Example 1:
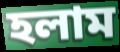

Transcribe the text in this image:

হলাম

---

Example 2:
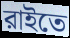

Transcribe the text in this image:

রাইতে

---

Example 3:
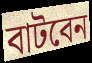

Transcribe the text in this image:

বাটবেন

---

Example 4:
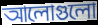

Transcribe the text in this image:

আলোগুলো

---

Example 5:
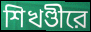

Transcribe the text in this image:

শিখণ্ডীরে